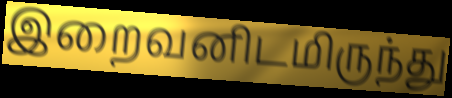
இறைவனிடமிருந்து